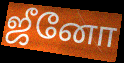
ஜீனோ